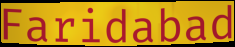
Faridabad